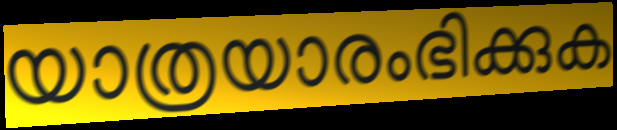
യാത്രയാരംഭിക്കുക